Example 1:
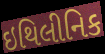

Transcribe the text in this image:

ઇથિલીનિક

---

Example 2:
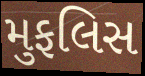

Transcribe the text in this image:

મુફલિસ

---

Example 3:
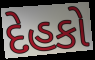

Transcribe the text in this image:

દેહકો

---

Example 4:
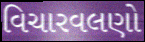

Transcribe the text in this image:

વિચારવલણો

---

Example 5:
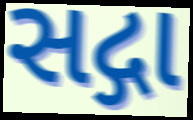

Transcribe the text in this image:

સદ્ગા